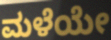
ಮಳೆಯೇ